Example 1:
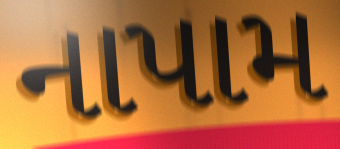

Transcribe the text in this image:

નાપામ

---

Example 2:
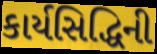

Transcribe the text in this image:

કાર્યસિદ્ધિની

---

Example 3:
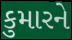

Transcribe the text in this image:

કુમારને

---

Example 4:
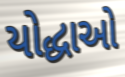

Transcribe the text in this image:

યોદ્ધાઓ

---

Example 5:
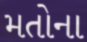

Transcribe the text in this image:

મતોના